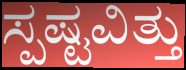
ಸ್ಪಷ್ಟವಿತ್ತು